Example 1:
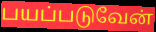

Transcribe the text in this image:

பயப்படுவேன்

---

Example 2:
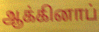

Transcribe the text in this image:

ஆக்கினாப்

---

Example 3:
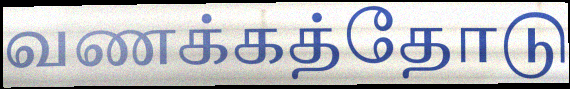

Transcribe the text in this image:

வணக்கத்தோடு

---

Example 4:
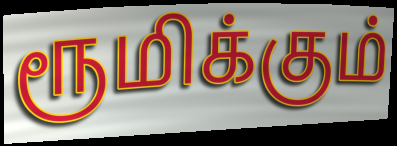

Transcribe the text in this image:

ரூமிக்கும்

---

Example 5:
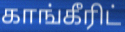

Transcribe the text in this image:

காங்கீரிட்